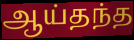
ஆய்தந்த